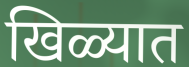
खिळ्यात